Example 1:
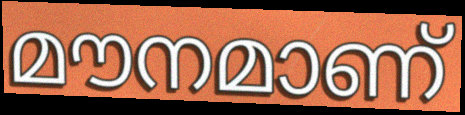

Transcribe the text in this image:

മൗനമാണ്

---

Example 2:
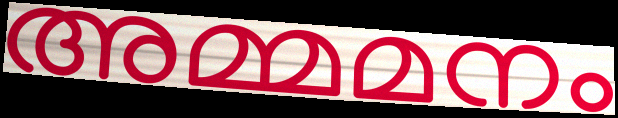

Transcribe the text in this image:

അമ്മമനം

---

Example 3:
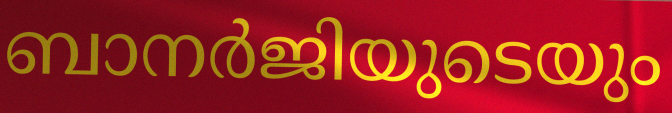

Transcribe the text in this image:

ബാനർജിയുടെയും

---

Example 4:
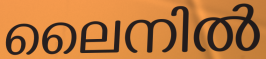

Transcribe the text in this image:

ലൈനിൽ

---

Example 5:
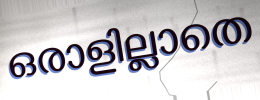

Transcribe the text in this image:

ഒരാളില്ലാതെ